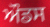
ਔਡਸ